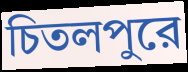
চিতলপুরে